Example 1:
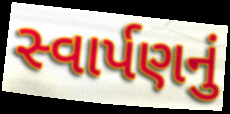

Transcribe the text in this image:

સ્વાર્પણનું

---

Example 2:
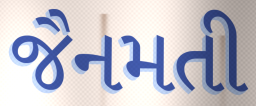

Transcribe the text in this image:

જૈનમતી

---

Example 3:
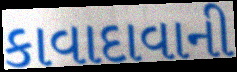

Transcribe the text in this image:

કાવાદાવાની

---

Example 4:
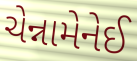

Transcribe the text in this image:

ચેન્નામેનેઈ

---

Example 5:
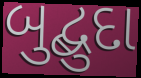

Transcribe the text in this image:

બુદ્બુદા